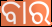
ବାର